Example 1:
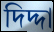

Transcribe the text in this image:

দিদ্দা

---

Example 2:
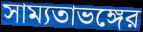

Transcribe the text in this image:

সাম্যতাভঙ্গের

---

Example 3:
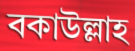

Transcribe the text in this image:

বকাউল্লাহ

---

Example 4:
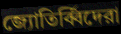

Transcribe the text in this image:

জ্যোতির্ব্বিদেরা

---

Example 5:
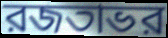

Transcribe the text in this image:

রজতাভর